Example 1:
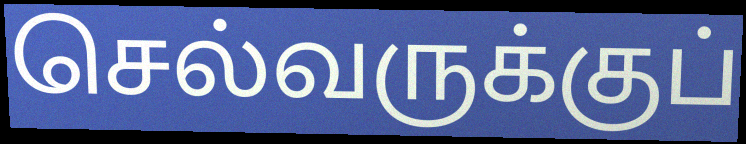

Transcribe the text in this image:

செல்வருக்குப்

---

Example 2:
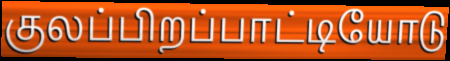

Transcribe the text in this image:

குலப்பிறப்பாட்டியோடு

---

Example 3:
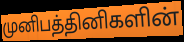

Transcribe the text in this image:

முனிபத்தினிகளின்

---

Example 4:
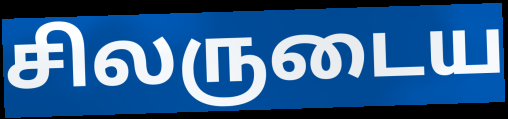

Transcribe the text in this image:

சிலருடைய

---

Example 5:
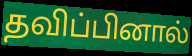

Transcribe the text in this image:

தவிப்பினால்